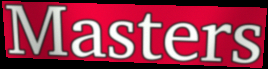
Masters